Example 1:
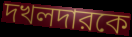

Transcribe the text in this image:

দখলদারকে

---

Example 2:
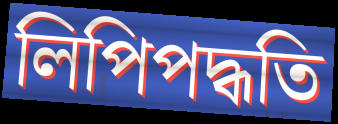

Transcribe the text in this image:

লিপিপদ্ধতি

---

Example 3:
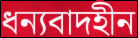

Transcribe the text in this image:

ধন্যবাদহীন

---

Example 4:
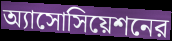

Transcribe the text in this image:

অ্যাসোসিয়েশনের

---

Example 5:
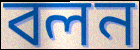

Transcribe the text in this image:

বলন